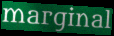
marginal